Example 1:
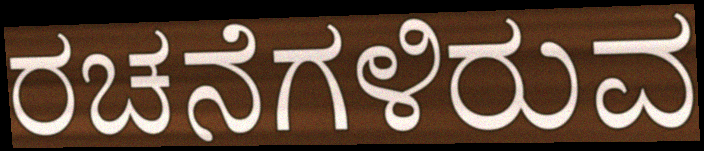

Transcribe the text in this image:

ರಚನೆಗಳಿರುವ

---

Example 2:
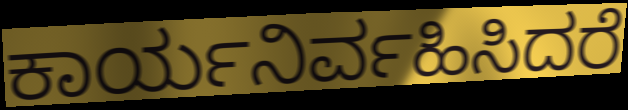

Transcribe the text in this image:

ಕಾರ್ಯನಿರ್ವಹಿಸಿದರೆ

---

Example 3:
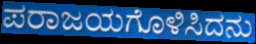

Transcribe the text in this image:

ಪರಾಜಯಗೊಳಿಸಿದನು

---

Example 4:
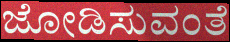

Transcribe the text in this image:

ಜೋಡಿಸುವಂತೆ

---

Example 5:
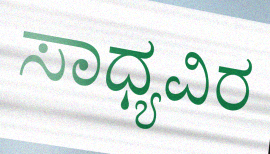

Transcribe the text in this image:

ಸಾಧ್ಯವಿರ